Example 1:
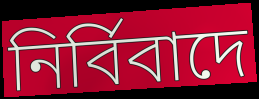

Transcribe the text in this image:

নিৰ্বিবাদে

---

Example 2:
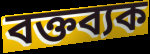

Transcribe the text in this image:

বক্তব্যক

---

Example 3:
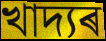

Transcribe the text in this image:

খাদ্যৰ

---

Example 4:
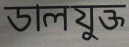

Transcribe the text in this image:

ডালযুক্ত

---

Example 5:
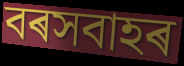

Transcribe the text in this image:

বৰসবাহৰ